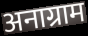
अनाग्राम